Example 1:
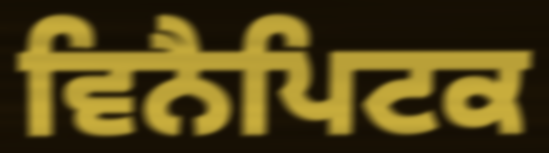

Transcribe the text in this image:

ਵਿਨੈਪਿਟਕ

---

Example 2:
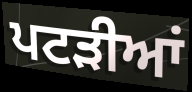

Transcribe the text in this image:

ਪਟਡ਼ੀਆਂ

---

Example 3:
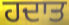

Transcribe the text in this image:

ਹਦਾਤ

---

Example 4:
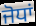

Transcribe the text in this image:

ਜੋਧਾਂ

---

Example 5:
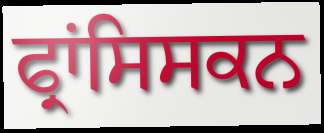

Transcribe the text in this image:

ਫ੍ਰਾਂਸਿਸਕਨ